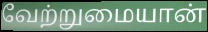
வேற்றுமையான்